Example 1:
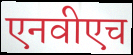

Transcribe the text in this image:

एनवीएच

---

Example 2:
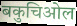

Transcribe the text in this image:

बकुचिओल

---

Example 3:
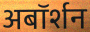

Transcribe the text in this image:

अबॉर्शन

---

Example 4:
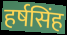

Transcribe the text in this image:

हर्षसिंह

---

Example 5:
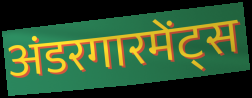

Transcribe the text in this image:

अंडरगारमेंट्स